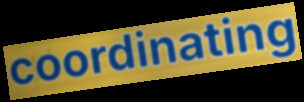
coordinating